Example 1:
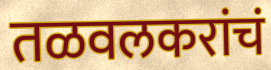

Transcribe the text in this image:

तळवलकरांचं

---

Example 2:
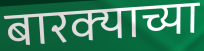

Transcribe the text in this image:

बारक्याच्या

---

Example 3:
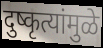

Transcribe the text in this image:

दुष्कृत्यांमुळे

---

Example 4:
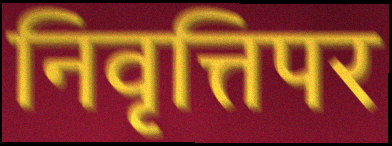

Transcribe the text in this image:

निवृत्तिपर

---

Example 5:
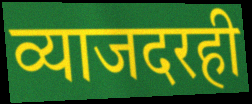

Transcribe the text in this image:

व्याजदरही